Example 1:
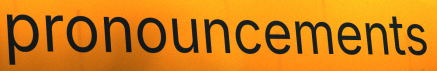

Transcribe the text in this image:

pronouncements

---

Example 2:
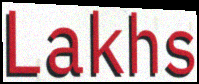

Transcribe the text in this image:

Lakhs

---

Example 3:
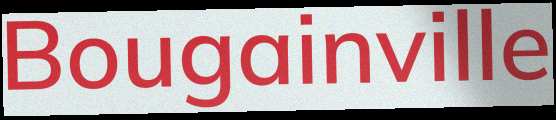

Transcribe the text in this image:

Bougainville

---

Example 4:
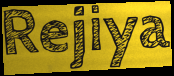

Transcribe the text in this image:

Rejiya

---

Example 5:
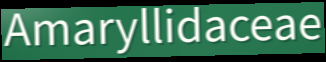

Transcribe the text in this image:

Amaryllidaceae